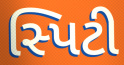
સ્પિટી